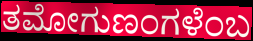
ತಮೋಗುಣಂಗಳೆಂಬ